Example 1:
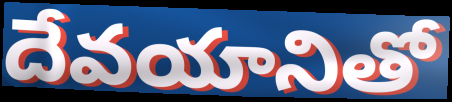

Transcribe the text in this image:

దేవయానితో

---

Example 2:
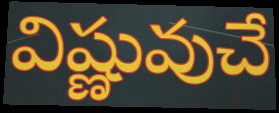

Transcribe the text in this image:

విష్ణువుచే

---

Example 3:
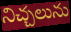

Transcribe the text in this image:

నిచ్చలును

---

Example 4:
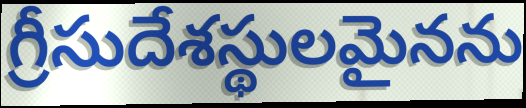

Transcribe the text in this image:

గ్రీసుదేశస్థులమైనను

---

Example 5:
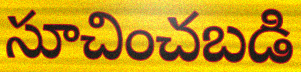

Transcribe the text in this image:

సూచించబడి